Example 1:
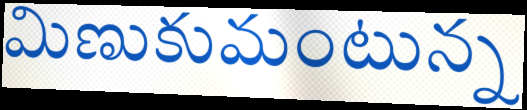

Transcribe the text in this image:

మిణుకుమంటున్న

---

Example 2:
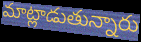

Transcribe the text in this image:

మాట్లాడుతున్నారు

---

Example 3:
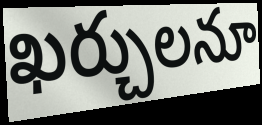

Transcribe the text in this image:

ఖర్చులనూ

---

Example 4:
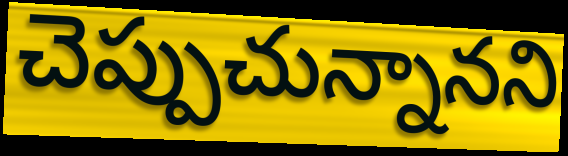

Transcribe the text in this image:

చెప్పుచున్నానని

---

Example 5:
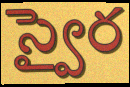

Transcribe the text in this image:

స్వైర